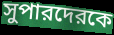
সুপারদেরকে